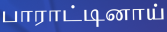
பாராட்டினாய்